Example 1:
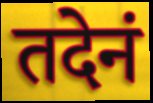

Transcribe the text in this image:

तदेनं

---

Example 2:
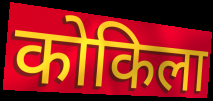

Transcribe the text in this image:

कोकिला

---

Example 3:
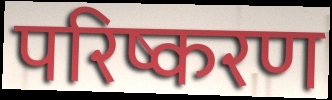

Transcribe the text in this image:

परिष्करण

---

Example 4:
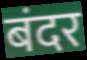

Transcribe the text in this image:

बंदर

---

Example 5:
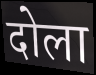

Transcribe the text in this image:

दोला